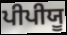
ਪੀਪੀਯੂ